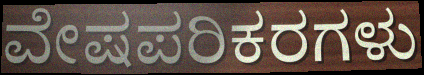
ವೇಷಪರಿಕರಗಳು